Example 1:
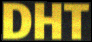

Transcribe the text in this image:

DHT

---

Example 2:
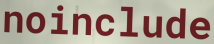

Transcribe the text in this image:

noinclude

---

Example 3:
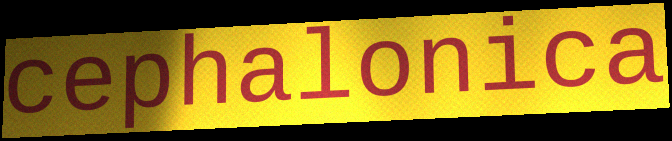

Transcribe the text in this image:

cephalonica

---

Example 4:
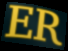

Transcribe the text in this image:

ER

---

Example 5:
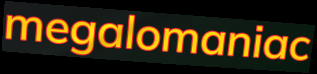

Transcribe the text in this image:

megalomaniac